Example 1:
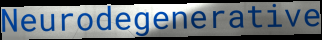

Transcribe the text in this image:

Neurodegenerative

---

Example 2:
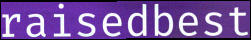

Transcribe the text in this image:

raisedbest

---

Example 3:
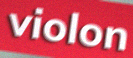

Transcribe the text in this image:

violon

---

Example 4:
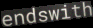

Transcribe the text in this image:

endswith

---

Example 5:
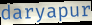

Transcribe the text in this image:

daryapur